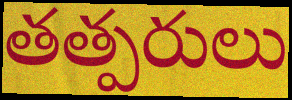
తత్పరులు